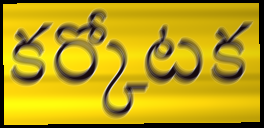
కర్కోటక